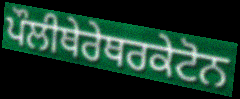
ਪੌਲੀਥੇਰੇਥਰਕੇਟੋਨ